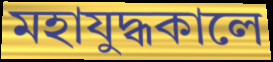
মহাযুদ্ধকালে